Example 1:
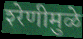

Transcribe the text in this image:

श्रेणीमुळे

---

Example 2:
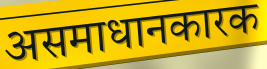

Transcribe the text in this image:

असमाधानकारक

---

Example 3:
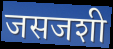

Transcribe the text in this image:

जसजशी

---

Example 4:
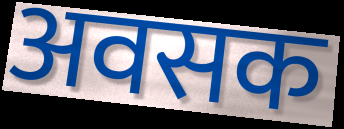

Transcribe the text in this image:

अवसक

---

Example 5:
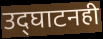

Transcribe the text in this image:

उद्घाटनही